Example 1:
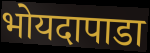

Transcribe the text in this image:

भोयदापाडा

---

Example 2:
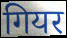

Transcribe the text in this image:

गियर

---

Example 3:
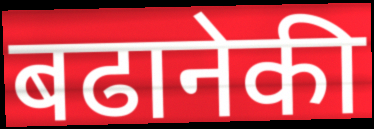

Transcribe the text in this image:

बढानेकी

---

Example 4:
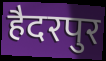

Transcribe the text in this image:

हैदरपुर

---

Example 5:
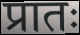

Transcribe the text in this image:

प्रातः